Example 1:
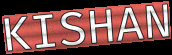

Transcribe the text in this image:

KISHAN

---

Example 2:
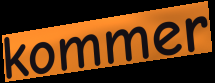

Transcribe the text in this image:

kommer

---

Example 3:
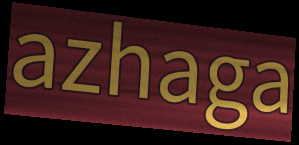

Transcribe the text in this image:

azhaga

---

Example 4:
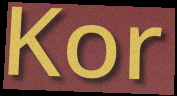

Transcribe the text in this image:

Kor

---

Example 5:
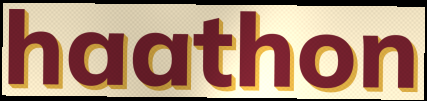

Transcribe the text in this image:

haathon